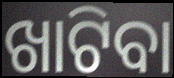
ଖାଟିବା